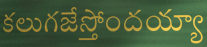
కలుగజేస్తోందయ్యా